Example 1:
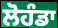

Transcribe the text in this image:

ਲੋਹੰਡਾ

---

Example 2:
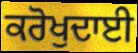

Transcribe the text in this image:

ਕਰੋਖੁਦਾਈ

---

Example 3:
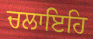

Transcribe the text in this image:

ਚਲਾਇਹਿ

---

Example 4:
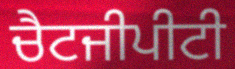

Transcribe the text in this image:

ਚੈਟਜੀਪੀਟੀ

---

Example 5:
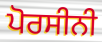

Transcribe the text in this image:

ਪੋਰਸੀਨੀ